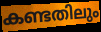
കണ്ടതിലും